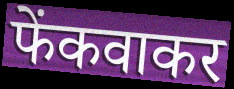
फेंकवाकर